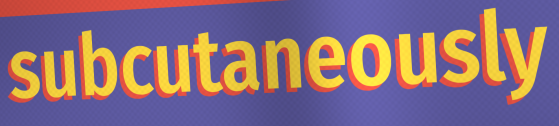
subcutaneously